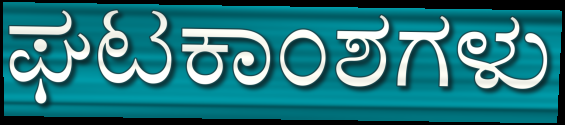
ಘಟಕಾಂಶಗಳು